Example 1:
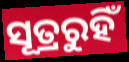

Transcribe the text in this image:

ସୂତ୍ରରୁହିଁ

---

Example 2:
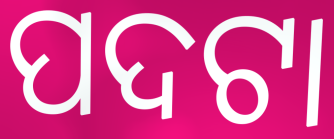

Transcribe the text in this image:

ପଦଟା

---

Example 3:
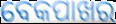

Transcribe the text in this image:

ବେକପାଖର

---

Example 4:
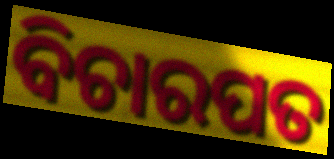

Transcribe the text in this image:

ବିଚାରପତ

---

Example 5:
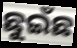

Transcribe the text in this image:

ଛୁଇଁଛ